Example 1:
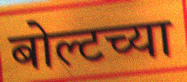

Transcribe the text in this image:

बोल्टच्या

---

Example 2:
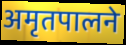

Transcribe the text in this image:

अमृतपालने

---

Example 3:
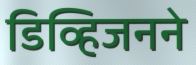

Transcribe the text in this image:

डिव्हिजनने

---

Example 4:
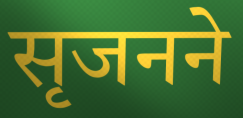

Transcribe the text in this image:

सृजनने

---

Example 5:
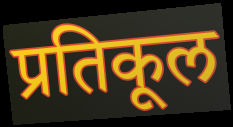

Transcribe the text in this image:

प्रतिकूल